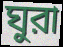
ঘুরা